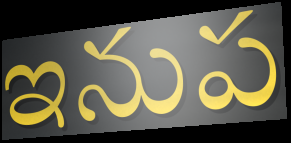
ఇనుప